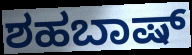
ಶಹಬಾಷ್